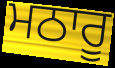
ਮਠਾਰੂ